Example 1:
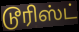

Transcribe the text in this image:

டூரிஸ்ட்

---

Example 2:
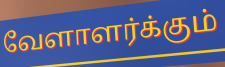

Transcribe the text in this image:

வேளாளர்க்கும்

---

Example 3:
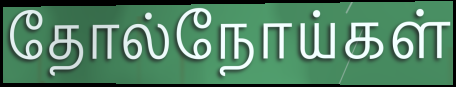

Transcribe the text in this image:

தோல்நோய்கள்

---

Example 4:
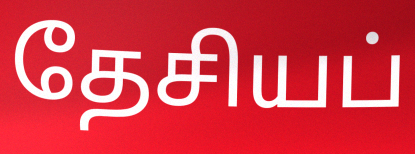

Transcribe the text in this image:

தேசியப்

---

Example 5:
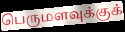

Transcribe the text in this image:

பெருமளவுக்குக்